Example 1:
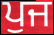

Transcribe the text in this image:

ਪੁਜ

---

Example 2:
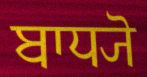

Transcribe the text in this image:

ਬਾਧ੍ਯੋ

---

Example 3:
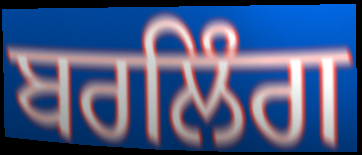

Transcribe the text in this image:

ਬਰਲਿੰਗ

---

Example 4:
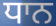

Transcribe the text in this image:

ਧਾਨ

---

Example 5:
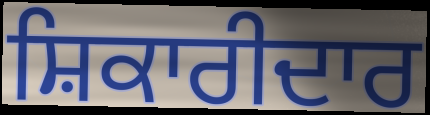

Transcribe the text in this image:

ਸ਼ਿਕਾਰੀਦਾਰ